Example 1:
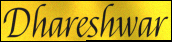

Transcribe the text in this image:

Dhareshwar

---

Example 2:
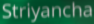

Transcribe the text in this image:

Striyancha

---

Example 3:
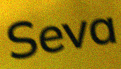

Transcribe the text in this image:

Seva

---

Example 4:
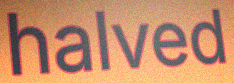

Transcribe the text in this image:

halved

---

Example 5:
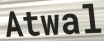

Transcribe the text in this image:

Atwal